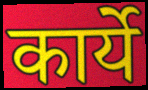
कार्ये